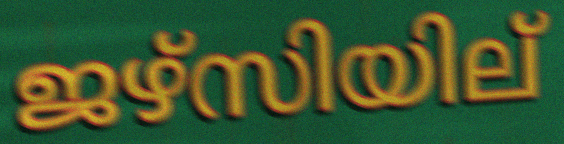
ജഴ്സിയില്